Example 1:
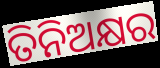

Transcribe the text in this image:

ତିନିଅକ୍ଷର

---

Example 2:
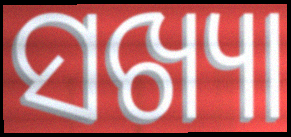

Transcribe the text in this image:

ସଖ୍ୟା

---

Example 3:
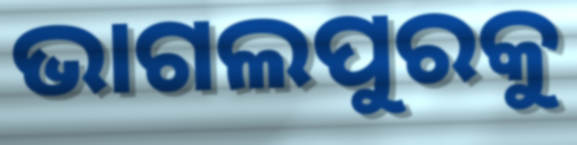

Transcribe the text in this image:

ଭାଗଲପୁରକୁ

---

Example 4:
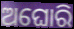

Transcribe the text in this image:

ଅଘୋରି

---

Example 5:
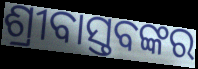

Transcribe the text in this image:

ଶ୍ରୀବାସ୍ତବଙ୍କର